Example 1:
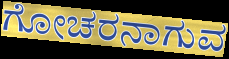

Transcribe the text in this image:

ಗೋಚರನಾಗುವ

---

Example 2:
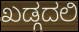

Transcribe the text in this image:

ಖಡ್ಗದಲಿ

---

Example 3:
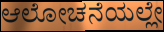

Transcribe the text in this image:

ಆಲೋಚನೆಯಲ್ಲೇ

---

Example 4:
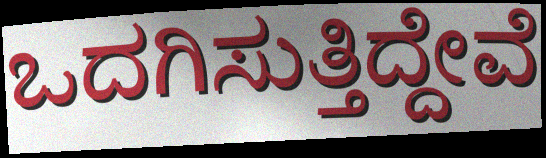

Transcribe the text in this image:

ಒದಗಿಸುತ್ತಿದ್ದೇವೆ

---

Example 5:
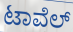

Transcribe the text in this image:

ಟಾವೆಲ್